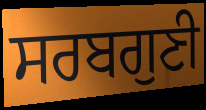
ਸਰਬਗੁਣੀ